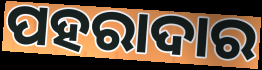
ପହରାଦାର